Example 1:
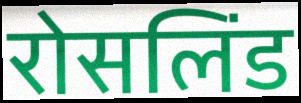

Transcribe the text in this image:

रोसलिंड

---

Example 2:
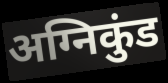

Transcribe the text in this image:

अग्निकुंड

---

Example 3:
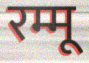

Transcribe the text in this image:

रम्मू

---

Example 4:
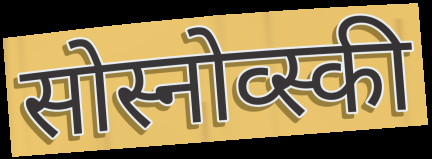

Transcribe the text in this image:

सोस्नोव्स्की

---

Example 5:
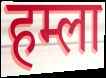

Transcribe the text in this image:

हम्ला